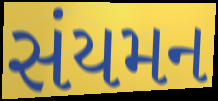
સંયમન